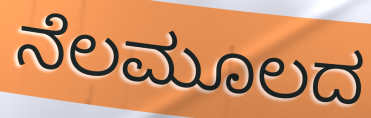
ನೆಲಮೂಲದ